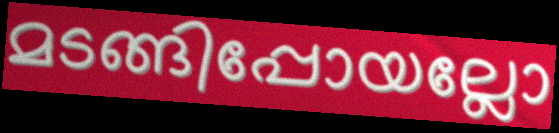
മടങ്ങിപ്പോയല്ലോ